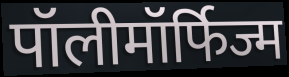
पॉलीमॉर्फिज्म